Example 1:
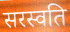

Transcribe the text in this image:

सरस्वति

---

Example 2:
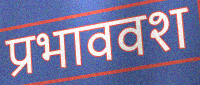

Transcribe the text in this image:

प्रभाववश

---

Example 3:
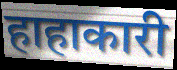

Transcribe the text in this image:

हाहाकारी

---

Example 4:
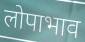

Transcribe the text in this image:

लोपाभाव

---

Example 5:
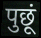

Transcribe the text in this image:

पुछूं